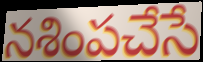
నశింపచేసే